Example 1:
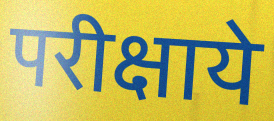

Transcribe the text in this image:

परीक्षाये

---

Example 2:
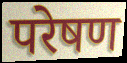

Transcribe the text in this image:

परेषण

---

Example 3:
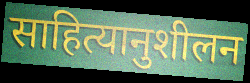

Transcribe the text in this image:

साहित्यानुशीलन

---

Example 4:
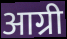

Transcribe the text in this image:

आग्री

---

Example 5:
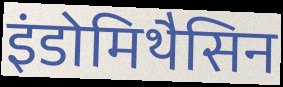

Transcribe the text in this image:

इंडोमिथैसिन